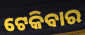
ଟେକିବାର